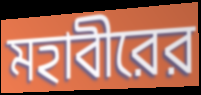
মহাবীরের